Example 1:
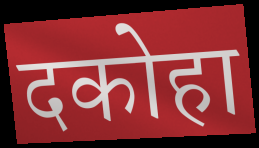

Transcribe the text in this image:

दकोहा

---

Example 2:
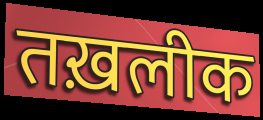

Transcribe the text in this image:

तख़लीक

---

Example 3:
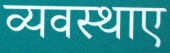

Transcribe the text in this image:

व्यवस्थाए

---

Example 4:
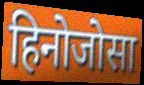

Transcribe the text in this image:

हिनोजोसा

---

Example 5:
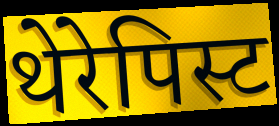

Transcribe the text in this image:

थेरेपिस्ट